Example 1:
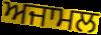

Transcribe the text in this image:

ਅਜਾਮਲ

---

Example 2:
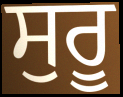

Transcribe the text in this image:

ਸੁਰੂ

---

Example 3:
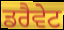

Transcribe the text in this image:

ਡਰੈਵੇਟ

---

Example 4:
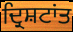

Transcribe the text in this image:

ਦ੍ਰਿਸ਼ਟਾਂਤ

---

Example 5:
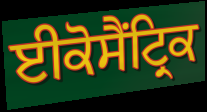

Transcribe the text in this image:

ਈਕੋਸੈਂਟ੍ਰਿਕ